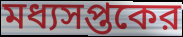
মধ্যসপ্তকের